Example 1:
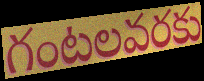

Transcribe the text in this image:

గంటలవరకు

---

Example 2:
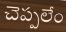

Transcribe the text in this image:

చెప్పలేం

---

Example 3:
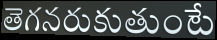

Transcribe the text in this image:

తెగనరుకుతుంటే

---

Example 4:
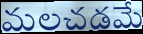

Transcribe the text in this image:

మలచడమే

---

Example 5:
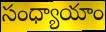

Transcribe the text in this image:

సంధ్యాయాం